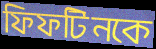
ফিফটিনকে